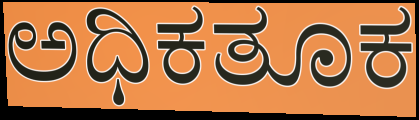
ಅಧಿಕತೂಕ